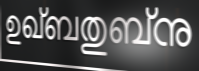
ഉഖ്ബതുബ്നു